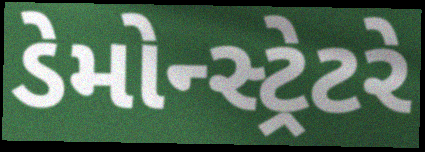
ડેમોન્સ્ટ્રેટરે